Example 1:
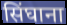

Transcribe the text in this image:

सिंघाना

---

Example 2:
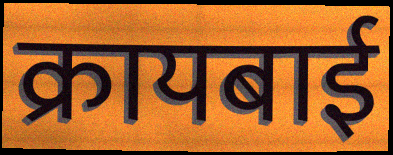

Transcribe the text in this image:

क्रायबाई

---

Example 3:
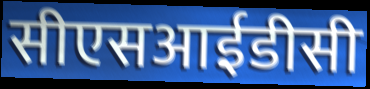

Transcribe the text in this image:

सीएसआईडीसी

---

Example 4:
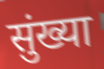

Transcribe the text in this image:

सुंख्या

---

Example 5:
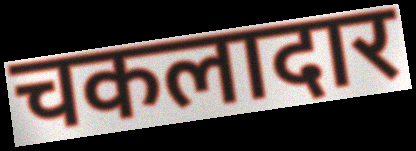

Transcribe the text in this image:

चकलादार